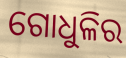
ଗୋଧୁଳିର